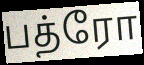
பத்ரோ